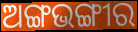
ଅଙ୍ଗଭଙ୍ଗୀର